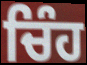
ਚਿੰਹ